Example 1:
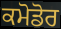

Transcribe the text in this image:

ਕਮੋਡੋਰ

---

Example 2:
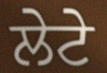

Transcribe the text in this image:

ਲੇਟੇ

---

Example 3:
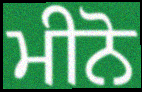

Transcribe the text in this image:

ਮੀਨੋ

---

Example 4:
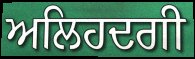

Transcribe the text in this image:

ਅਲਿਹਦਗੀ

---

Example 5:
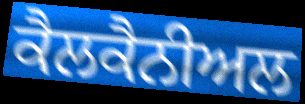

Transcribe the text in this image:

ਕੈਲਕੈਨੀਅਲ